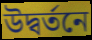
উদ্বর্তনে